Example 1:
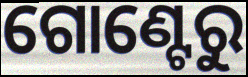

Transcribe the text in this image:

ଗୋଣ୍ଟେରୁ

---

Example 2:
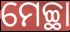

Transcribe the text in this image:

ମେଚ୍ଛା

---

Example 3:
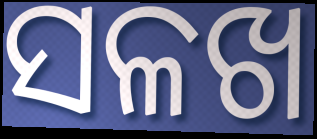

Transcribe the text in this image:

ସଳଖ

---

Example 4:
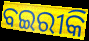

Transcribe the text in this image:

ବଇରୀକି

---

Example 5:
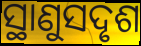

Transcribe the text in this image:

ସ୍ଥାଣୁସଦୃଶ